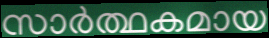
സാർത്ഥകമായ